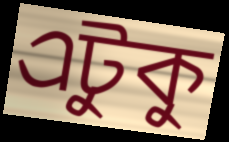
এটুকু